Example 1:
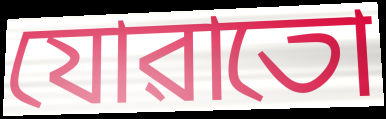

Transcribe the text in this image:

যোৱাতো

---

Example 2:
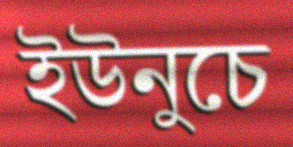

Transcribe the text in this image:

ইউনুচে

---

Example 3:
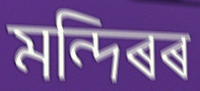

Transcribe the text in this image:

মন্দিৰৰ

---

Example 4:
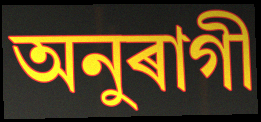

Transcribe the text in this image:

অনুৰাগী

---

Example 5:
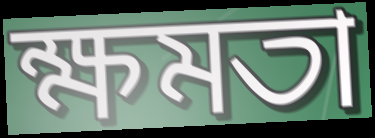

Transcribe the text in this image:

ক্ষমতা